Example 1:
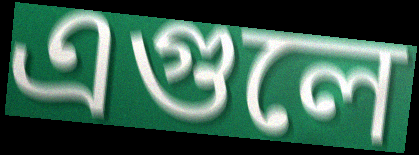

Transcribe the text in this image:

এগুলে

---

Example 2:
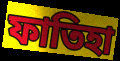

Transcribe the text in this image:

ফাতিহা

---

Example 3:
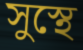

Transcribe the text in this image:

সুস্থে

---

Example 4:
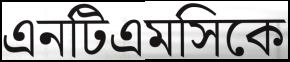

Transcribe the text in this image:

এনটিএমসিকে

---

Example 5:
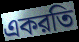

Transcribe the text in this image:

একরতি